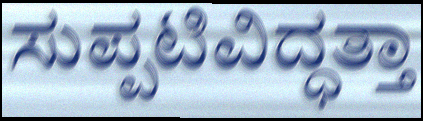
ಸುಪ್ಪಟಿವಿದ್ಧತ್ತಾ